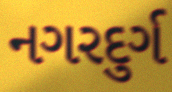
નગરદુર્ગ